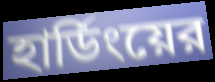
হার্ডিংয়ের